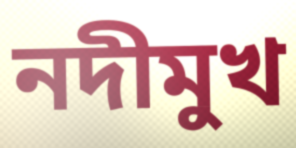
নদীমুখ